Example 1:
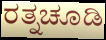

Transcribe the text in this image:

ರತ್ನಚೂಡಿ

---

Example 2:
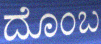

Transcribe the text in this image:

ದೊಂಬ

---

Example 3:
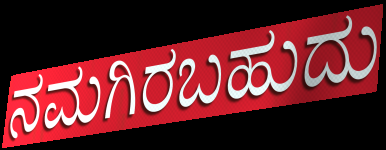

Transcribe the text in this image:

ನಮಗಿರಬಹುದು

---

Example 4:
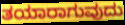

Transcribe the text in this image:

ತಯಾರಾಗುವುದು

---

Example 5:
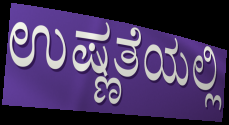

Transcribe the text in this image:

ಉಷ್ಣತೆಯಲ್ಲಿ